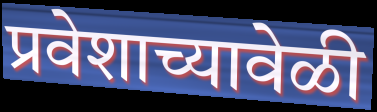
प्रवेशाच्यावेळी